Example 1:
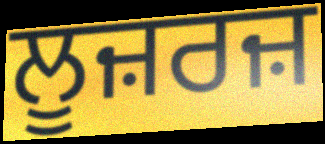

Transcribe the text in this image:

ਲੂਜ਼ਰਜ਼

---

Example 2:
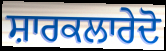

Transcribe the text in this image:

ਸ਼ਾਰਕਲਾਰੇਦੋ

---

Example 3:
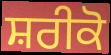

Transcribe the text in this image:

ਸ਼ਰੀਕੋ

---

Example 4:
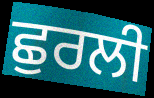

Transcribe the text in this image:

ਛੁਰਲੀ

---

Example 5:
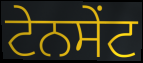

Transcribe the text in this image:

ਟੇਨਸੇਂਟ